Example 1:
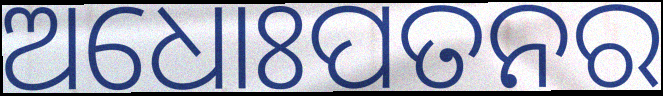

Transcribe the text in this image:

ଅଧୋଃପତନର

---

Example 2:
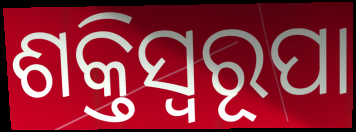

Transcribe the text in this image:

ଶକ୍ତିସ୍ବରୂପା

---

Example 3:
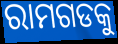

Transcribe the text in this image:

ରାମଗଡକୁ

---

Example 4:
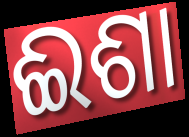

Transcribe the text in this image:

ଈଶା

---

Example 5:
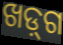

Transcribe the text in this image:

ଖଡ଼୍‌ଗ